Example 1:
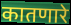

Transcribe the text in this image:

कातणारे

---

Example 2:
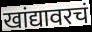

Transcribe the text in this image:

खांद्यावरचं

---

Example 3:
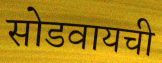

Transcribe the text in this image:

सोडवायची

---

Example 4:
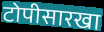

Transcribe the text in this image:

टोपीसारखा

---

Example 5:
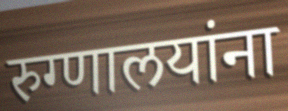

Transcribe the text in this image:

रुग्णालयांना